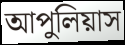
আপুলিয়াস